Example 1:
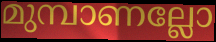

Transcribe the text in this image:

മുമ്പാണല്ലോ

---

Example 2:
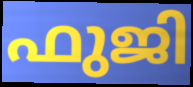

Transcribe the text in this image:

ഫുജി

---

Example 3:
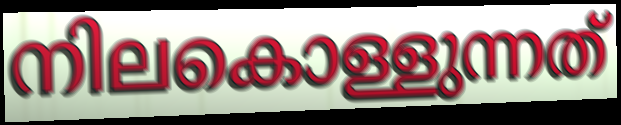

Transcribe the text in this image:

നിലകൊള്ളുന്നത്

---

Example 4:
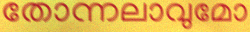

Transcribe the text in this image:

തോന്നലാവുമോ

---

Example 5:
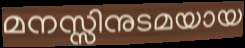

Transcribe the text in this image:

മനസ്സിനുടമയായ